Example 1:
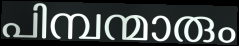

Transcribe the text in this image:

പിമ്പന്മാരും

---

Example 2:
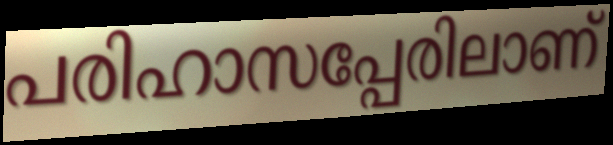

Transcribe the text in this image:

പരിഹാസപ്പേരിലാണ്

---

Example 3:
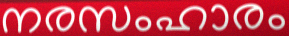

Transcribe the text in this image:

നരസംഹാരം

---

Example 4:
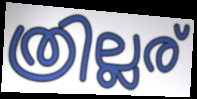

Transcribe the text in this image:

ത്രില്ലര്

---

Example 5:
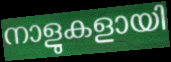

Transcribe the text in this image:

നാളുകളായി